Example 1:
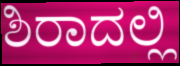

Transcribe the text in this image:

ಶಿರಾದಲ್ಲಿ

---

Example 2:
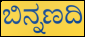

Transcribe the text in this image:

ಬಿನ್ನಣದಿ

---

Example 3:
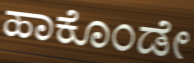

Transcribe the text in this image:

ಹಾಕೊಂಡೇ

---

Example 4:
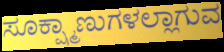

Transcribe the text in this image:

ಸೂಕ್ಷ್ಮಾಣುಗಳಲ್ಲಾಗುವ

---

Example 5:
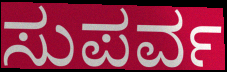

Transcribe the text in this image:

ಸುಪರ್ವ